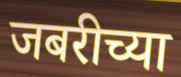
जबरीच्या